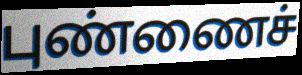
புண்ணைச்